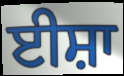
ਈਸ਼ਾ